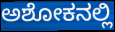
ಅಶೋಕನಲ್ಲಿ